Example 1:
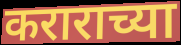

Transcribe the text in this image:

कराराच्या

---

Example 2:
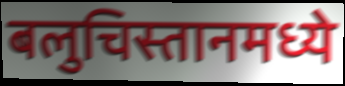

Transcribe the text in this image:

बलुचिस्तानमध्ये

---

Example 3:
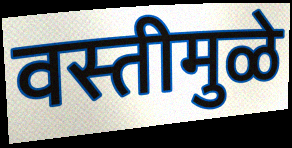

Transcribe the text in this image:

वस्तीमुळे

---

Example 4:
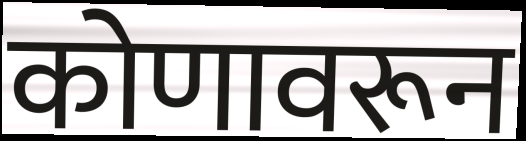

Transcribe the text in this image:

कोणावरून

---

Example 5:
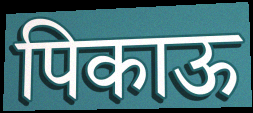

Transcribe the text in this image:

पिकाऊ